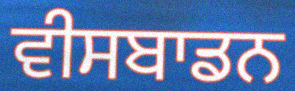
ਵੀਸਬਾਡਨ